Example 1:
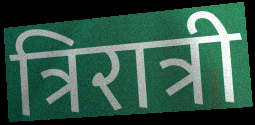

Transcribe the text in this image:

त्रिरात्री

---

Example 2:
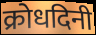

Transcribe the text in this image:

क्रोधदिनी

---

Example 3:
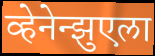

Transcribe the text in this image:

व्हेनेन्झुएला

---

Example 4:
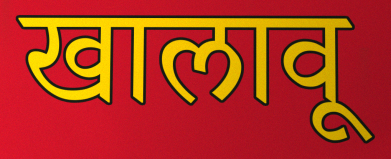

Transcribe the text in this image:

खालावू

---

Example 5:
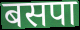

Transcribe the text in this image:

बसपा